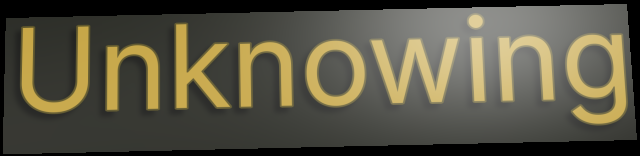
Unknowing